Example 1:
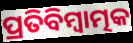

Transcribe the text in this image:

ପ୍ରତିବିମ୍ବାତ୍ମକ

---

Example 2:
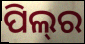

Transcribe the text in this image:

ପିଲ୍‌ର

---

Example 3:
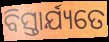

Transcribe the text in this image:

ବିସ୍ତାର୍ଯ୍ୟତେ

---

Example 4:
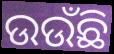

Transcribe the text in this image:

ଉଉଁଛି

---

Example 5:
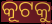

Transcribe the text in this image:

କୂଟକୁ